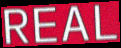
REAL